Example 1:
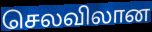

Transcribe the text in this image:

செலவிலான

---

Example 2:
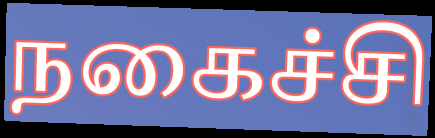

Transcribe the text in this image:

நகைச்சி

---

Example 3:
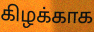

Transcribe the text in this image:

கிழக்காக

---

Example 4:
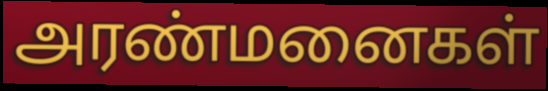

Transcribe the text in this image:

அரண்மனைகள்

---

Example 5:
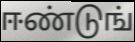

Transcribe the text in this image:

ஈண்டுங்